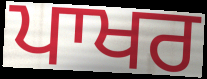
ਪਾਖਰ